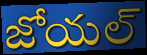
జోయల్